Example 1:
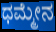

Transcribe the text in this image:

ಧಮ್ಮೇನ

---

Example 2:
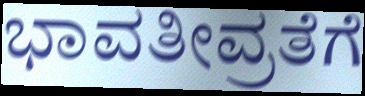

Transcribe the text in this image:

ಭಾವತೀವ್ರತೆಗೆ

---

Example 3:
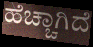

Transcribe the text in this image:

ಹೆಚ್ಚಾಗಿದೆ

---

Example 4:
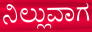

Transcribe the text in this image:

ನಿಲ್ಲುವಾಗ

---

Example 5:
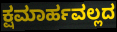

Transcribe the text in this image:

ಕ್ಷಮಾರ್ಹವಲ್ಲದ